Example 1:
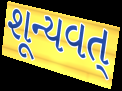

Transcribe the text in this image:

શૂન્યવત્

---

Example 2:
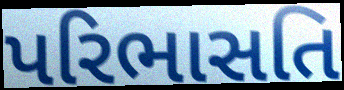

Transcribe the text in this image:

પરિભાસતિ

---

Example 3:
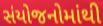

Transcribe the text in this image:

સંયોજનોમાંથી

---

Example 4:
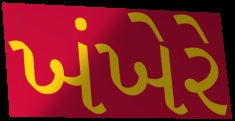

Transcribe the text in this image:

ખંખેરે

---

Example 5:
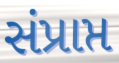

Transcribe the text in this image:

સંપ્રાપ્ત